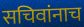
सचिवांनाच